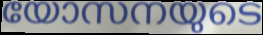
യോസനയുടെ